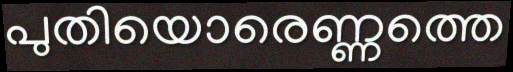
പുതിയൊരെണ്ണത്തെ